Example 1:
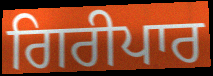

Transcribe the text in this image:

ਗਿਰੀਪਾਰ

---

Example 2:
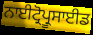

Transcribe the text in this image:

ਨਾਈਟ੍ਰੋਪ੍ਰੂਸਾਈਡ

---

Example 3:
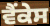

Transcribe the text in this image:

ਵੈਂਕੇਸ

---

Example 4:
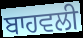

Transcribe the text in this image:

ਬਾਹਵਲੀ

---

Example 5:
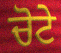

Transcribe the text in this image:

ਚੋਟੇ